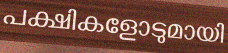
പക്ഷികളോടുമായി